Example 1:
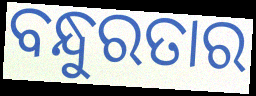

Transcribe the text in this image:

ବନ୍ଧୁରତାର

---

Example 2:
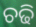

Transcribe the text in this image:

ଚଢି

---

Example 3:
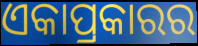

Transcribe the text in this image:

ଏକାପ୍ରକାରର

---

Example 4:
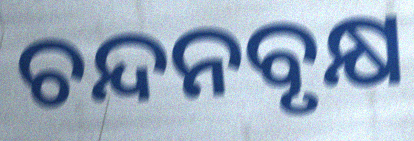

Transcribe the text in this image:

ଚନ୍ଦନବୃକ୍ଷ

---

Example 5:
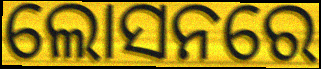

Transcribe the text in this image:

ଲୋସନରେ